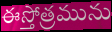
ఈస్తోత్రమును